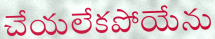
చేయలేకపోయేను